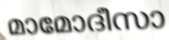
മാമോദീസാ